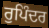
ਰੁਪਿੰਦਰ